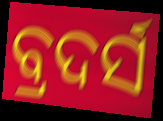
ବ୍ରଦର୍ସ